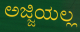
ಅಜ್ಜಿಯಲ್ಲ